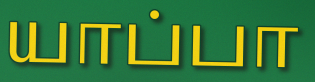
யாப்பா